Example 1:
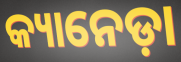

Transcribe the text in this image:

କ୍ୟାନେଡ଼ା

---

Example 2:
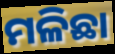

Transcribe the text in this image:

ମଳିଛା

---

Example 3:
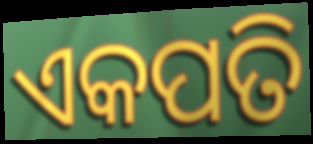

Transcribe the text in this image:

ଏକପତି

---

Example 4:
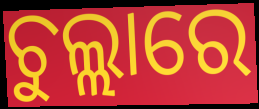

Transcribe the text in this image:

ଚୁଲ୍ଲାରେ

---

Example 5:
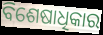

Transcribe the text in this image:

ବିଶେଷାଧିକାର